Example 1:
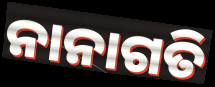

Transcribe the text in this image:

ନାନାଗତି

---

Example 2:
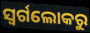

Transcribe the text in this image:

ସ୍ଵର୍ଗଲୋକରୁ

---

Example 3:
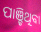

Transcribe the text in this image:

ପାଞ୍ଚିଥିବା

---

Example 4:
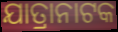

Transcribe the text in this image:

ଯାତ୍ରାନାଟକ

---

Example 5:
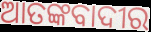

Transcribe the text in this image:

ଆତଙ୍କବାଦୀର